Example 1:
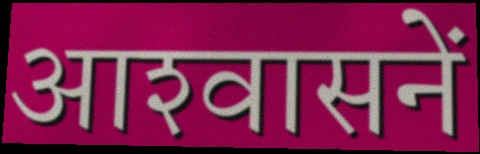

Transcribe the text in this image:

आश्वासनें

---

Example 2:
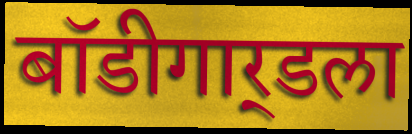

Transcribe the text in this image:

बॉडीगार्डला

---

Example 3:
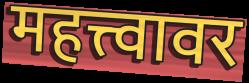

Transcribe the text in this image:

महत्त्वावर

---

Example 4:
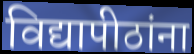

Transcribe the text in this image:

विद्यापीठांना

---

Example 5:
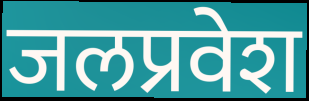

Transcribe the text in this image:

जलप्रवेश